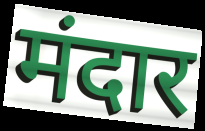
मंदार